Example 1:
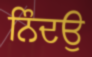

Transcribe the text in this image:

ਨਿੰਦਉ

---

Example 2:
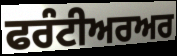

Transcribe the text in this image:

ਫਰੰਟੀਅਰਅਰ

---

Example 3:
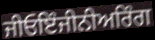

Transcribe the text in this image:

ਜੀਓਇੰਜੀਨੀਅਰਿੰਗ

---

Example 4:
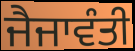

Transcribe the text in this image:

ਜੈਜਾਵੰਤੀ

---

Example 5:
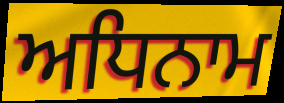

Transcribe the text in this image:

ਅਧਿਨਾਮ